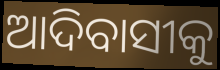
ଆଦିବାସୀକୁ